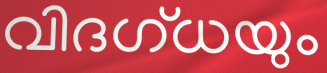
വിദഗ്ധയും